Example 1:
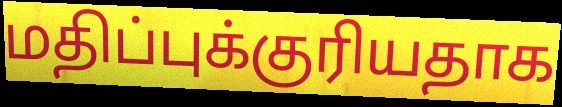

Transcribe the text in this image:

மதிப்புக்குரியதாக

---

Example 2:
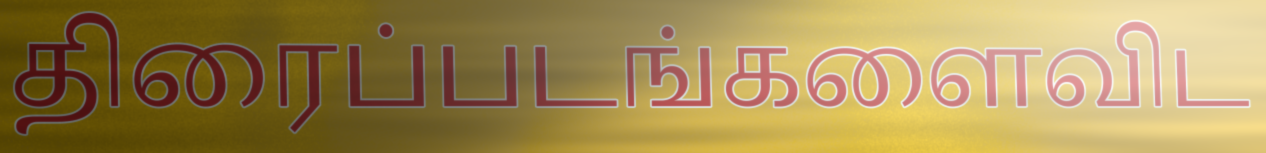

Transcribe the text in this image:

திரைப்படங்களைவிட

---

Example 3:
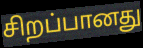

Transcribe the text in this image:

சிறப்பானது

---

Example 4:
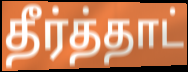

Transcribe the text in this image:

தீர்த்தாட்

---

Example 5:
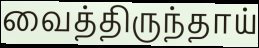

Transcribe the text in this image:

வைத்திருந்தாய்